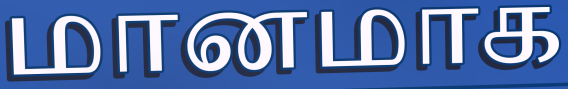
மானமாக